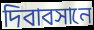
দিবাবসানে